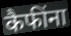
कैफींना